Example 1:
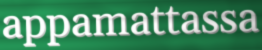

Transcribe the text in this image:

appamattassa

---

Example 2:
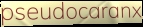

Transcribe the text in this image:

pseudocaranx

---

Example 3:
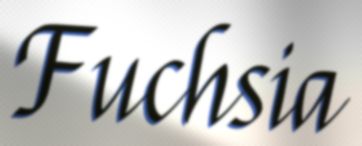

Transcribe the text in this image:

Fuchsia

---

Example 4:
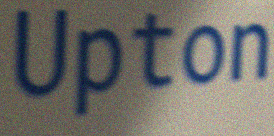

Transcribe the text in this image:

Upton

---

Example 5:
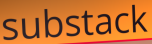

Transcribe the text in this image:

substack